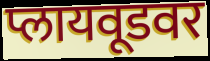
प्लायवूडवर